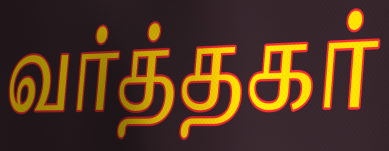
வர்த்தகர்